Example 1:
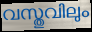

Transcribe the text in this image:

വസ്തുവിലും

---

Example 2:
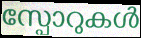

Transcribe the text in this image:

സ്പോറുകൾ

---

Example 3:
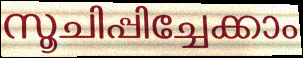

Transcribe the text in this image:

സൂചിപ്പിച്ചേക്കാം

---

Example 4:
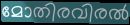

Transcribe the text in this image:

മോതിരവിരൽ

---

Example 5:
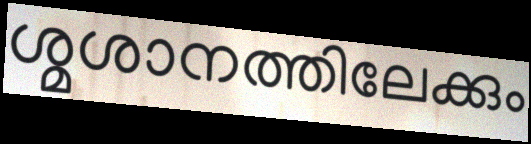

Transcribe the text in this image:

ശ്മശാനത്തിലേക്കും